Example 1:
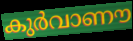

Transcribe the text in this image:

കുർവാണൗ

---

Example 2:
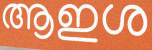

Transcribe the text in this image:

ആഇശ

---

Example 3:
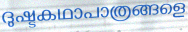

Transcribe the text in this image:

ദുഷ്ടകഥാപാത്രങ്ങളെ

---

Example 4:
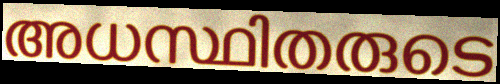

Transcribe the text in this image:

അധസ്ഥിതരുടെ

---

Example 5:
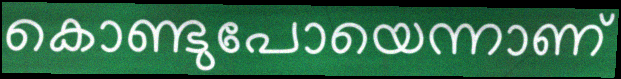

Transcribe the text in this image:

കൊണ്ടുപോയെന്നാണ്